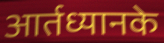
आर्तध्यानके